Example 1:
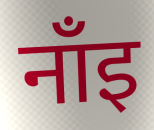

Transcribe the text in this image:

नाँइ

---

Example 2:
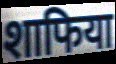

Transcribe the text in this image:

शाफिया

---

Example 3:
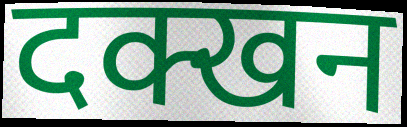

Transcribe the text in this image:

दक्खन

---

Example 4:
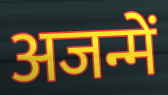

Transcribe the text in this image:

अजन्में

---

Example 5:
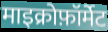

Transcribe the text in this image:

माइक्रोफ़ॉर्मेट